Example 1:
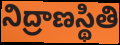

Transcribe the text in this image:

నిద్రాణస్థితి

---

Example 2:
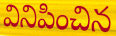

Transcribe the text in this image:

వినిపించిన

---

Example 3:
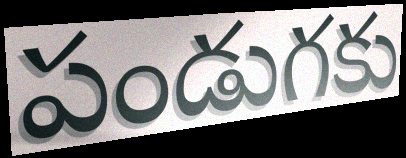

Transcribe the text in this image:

పండుగకు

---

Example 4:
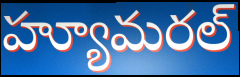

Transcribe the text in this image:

హ్యూమరల్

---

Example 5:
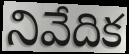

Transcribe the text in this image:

నివేదిక